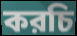
করচি